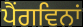
ਪੈਂਗਵਿਨਾਂ